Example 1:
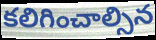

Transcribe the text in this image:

కలిగించాల్సిన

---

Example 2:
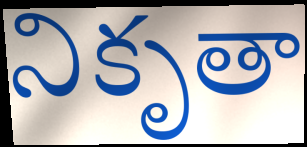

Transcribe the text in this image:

నికృతా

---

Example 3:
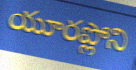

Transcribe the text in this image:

యూరప్లోని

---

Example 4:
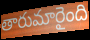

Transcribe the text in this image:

తారుమారైంది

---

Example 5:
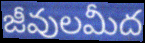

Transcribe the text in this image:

జీవులమీద